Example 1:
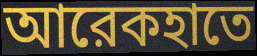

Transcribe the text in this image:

আরেকহাতে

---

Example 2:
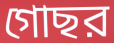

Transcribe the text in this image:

গোছর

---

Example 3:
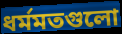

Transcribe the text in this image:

ধর্মমতগুলো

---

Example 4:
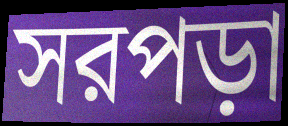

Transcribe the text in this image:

সরপড়া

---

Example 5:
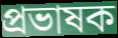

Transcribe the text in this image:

প্রভাষক